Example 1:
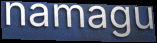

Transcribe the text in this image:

namagu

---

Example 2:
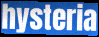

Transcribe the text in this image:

hysteria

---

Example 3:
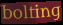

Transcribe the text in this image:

bolting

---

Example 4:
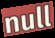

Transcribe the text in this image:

null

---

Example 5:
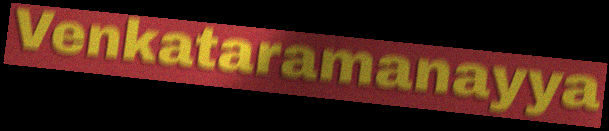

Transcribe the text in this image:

Venkataramanayya